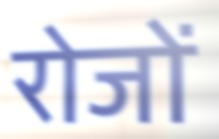
रोजों